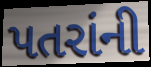
પતરાંની